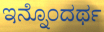
ಇನ್ನೊಂದರ್ಥ